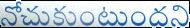
నోచుకుంటుందని